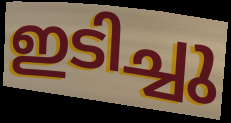
ഇടിച്ചു